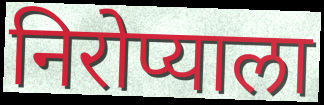
निरोप्याला